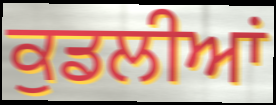
ਕੁਡਲੀਆਂ